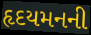
હૃદયમનની